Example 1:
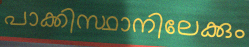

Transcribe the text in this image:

പാക്കിസ്ഥാനിലേക്കും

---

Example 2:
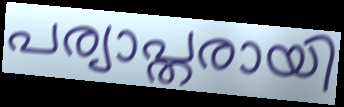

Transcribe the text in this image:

പര്യാപ്തരായി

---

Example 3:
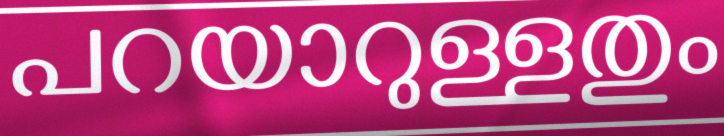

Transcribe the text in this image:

പറയാറുള്ളതും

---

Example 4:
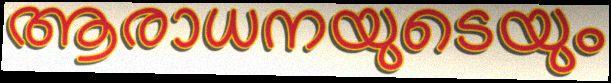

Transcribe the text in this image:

ആരാധനയുടെയും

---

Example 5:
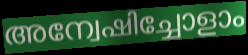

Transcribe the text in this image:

അന്വേഷിച്ചോളാം